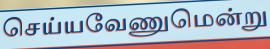
செய்யவேணுமென்று